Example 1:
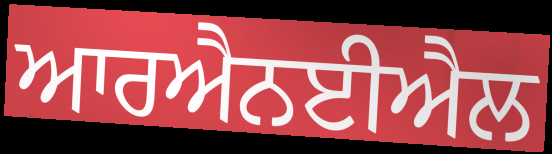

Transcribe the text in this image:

ਆਰਐਨਈਐਲ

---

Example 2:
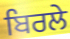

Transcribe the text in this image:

ਬਿਰਲੇ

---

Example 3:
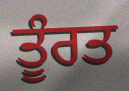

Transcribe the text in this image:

ਤੂੰਰਤ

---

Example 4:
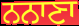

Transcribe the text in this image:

ਨਨਾਣਾ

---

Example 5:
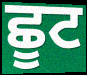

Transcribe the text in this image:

ਛੂਟ